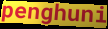
penghuni